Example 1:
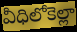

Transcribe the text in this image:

వీధిలోకెల్లా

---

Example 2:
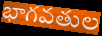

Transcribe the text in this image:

భాగవతుల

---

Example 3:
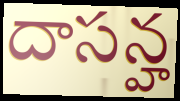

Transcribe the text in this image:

దాసన్హ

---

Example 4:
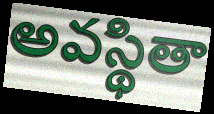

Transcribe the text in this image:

అవస్థితా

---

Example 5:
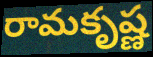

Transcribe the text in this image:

రామకృష్ణ